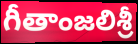
గీతాంజలిశ్రీ